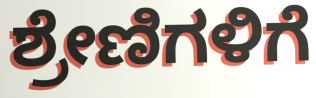
ಶ್ರೇಣಿಗಳಿಗೆ